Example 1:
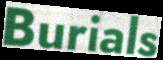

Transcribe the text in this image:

Burials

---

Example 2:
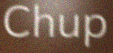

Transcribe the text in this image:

Chup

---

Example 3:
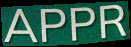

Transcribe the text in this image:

APPR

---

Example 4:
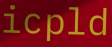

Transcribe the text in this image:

icpld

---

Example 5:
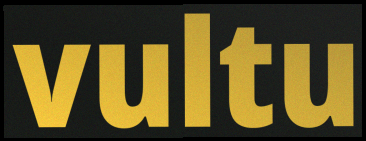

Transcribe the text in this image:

vultu